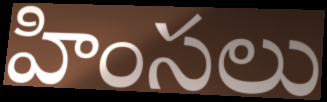
హింసలు